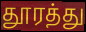
தூரத்து